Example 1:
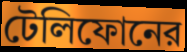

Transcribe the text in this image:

টেলিফোনের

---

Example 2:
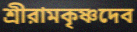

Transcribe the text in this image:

শ্রীরামকৃষ্ণদেব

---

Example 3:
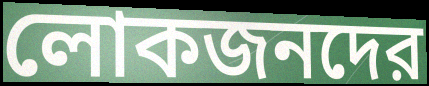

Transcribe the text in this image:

লোকজনদের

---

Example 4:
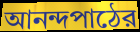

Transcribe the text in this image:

আনন্দপাঠের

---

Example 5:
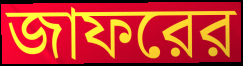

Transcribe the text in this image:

জাফরের